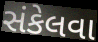
સંકેલવા